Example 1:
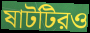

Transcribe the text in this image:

ষাটটিরও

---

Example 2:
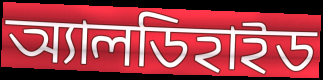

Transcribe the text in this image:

অ্যালডিহাইড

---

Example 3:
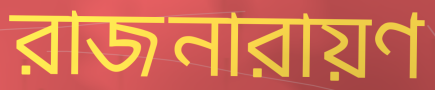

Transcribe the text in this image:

রাজনারায়ণ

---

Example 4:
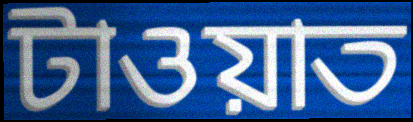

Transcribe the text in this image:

টাওয়াত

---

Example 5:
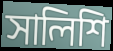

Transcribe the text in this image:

সালিশি